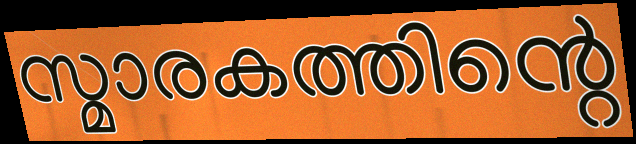
സ്മാരകത്തിന്റെ